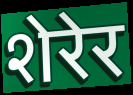
शेरेर